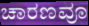
ಚಾರಣವೂ